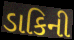
ડાકિની